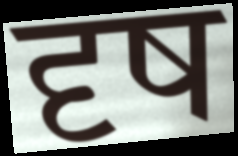
दृष